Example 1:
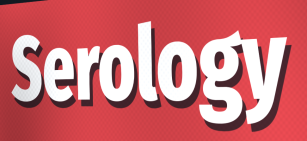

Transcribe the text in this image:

Serology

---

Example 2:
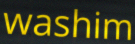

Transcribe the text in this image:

washim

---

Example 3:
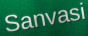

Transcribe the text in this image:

Sanvasi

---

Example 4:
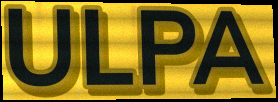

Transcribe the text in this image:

ULPA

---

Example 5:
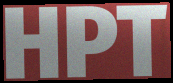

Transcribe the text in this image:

HPT